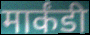
मार्कंडी